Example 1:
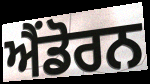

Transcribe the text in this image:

ਐਂਡੋਰਨ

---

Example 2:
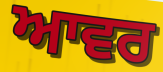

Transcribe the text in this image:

ਆਵਰ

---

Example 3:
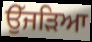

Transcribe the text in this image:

ਉੱਜੜਿਆ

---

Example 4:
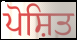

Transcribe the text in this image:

ਪੋਸ਼ਿਤ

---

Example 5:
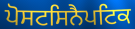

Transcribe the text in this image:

ਪੋਸਟਸਿਨੈਪਟਿਕ